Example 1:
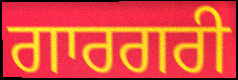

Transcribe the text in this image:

ਗਾਰਗਰੀ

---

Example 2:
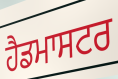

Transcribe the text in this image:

ਹੈਡਮਾਸਟਰ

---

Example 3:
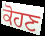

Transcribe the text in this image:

ਕੋਹਣ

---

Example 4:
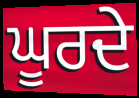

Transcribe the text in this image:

ਘੂਰਦੇ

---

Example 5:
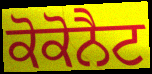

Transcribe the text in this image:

ਕੋਕੋਨੈਟ